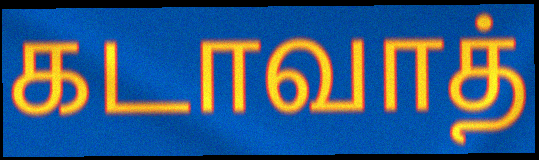
கடாவாத்